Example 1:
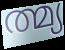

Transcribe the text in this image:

ത്മ്യ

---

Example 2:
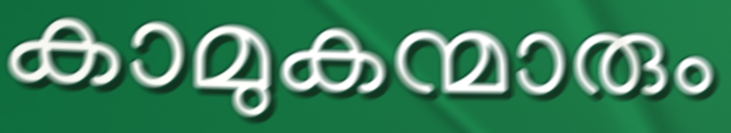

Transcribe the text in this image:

കാമുകന്മാരും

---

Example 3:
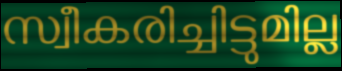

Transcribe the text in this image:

സ്വീകരിച്ചിട്ടുമില്ല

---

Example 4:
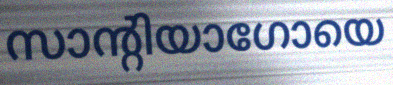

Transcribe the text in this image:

സാന്റിയാഗോയെ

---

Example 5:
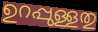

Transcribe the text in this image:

ഉറപ്പുള്ളതു